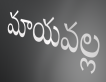
మాయవల్ల